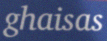
ghaisas